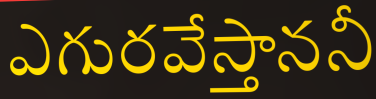
ఎగురవేస్తాననీ